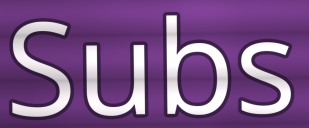
Subs